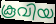
കൂവിയ